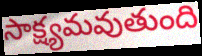
సాక్ష్యమవుతుంది